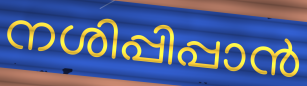
നശിപ്പിപ്പാൻ